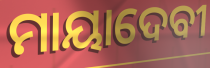
ମାୟାଦେବୀ